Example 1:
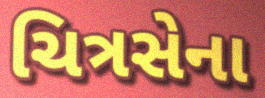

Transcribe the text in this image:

ચિત્રસેના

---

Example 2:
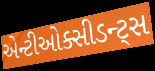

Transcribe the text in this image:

એન્ટીઓક્સીડન્ટ્સ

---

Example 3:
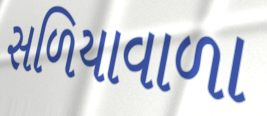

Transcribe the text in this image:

સળિયાવાળા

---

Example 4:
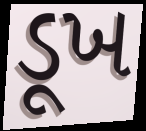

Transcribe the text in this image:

ડૂખ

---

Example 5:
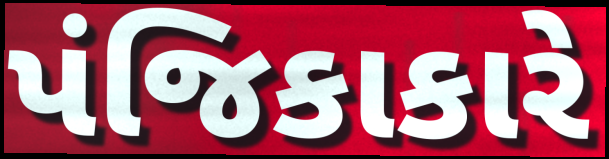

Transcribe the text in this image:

પંજિકાકારે